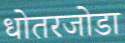
धोतरजोडा